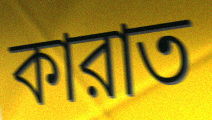
কারাত